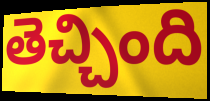
తెచ్చింది